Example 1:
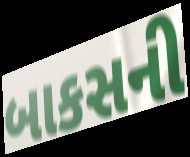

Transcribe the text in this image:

બાકસની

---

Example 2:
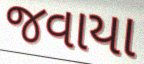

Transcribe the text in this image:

જવાયા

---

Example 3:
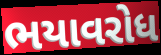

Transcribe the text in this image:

ભયાવરોધ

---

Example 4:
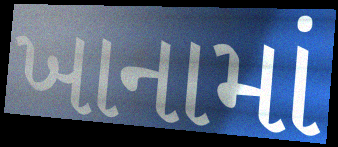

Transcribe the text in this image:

ખાનામાં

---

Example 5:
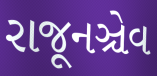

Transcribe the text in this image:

રાજૂનઞ્ચેવ